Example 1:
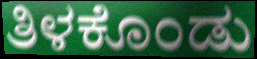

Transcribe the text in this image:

ತಿಳಕೊಂಡು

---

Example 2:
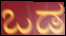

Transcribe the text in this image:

ಒಡ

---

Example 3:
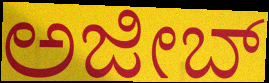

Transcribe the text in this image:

ಅಜೀಬ್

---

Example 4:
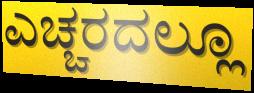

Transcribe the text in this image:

ಎಚ್ಚರದಲ್ಲೂ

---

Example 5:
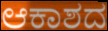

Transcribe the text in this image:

ಆಕಾಶದ